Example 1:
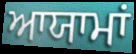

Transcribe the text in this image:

ਆਯਾਮਾਂ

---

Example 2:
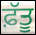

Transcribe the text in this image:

ਫ਼ੱਤੂ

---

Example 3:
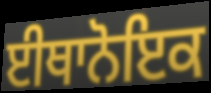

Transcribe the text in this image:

ਈਥਾਨੋਇਕ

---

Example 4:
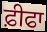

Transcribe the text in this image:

ਫ਼ੀਫਾ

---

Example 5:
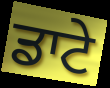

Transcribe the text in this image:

ਡਾਟੇ